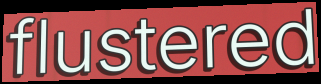
flustered